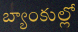
బ్యాంకుల్లో